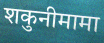
शकुनीमामा